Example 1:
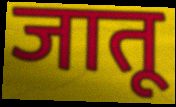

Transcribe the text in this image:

जातू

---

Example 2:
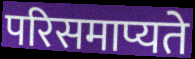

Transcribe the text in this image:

परिसमाप्यते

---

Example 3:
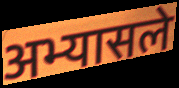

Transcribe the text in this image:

अभ्यासले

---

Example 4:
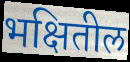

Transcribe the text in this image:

भक्षितील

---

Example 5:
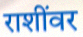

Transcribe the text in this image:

राशींवर